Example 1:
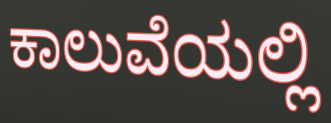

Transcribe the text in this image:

ಕಾಲುವೆಯಲ್ಲಿ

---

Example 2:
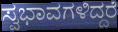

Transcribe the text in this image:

ಸ್ವಭಾವಗಳಿದ್ದರೆ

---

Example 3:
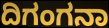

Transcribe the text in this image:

ದಿಗಂಗನಾ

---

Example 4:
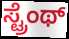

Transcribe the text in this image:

ಸ್ಟ್ರೆಂಥ್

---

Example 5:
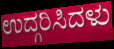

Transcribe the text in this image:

ಉದ್ಗರಿಸಿದಳು